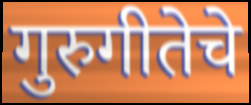
गुरुगीतेचे